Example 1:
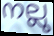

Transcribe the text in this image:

നല്ലു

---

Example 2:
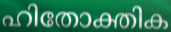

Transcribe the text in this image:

ഹിതോക്തിക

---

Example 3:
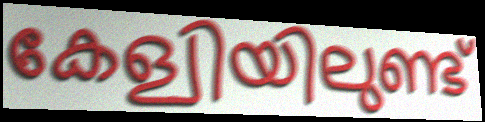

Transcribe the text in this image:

കേള്വിയിലുണ്ട്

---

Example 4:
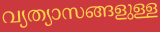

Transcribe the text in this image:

വ്യത്യാസങ്ങളുള്ള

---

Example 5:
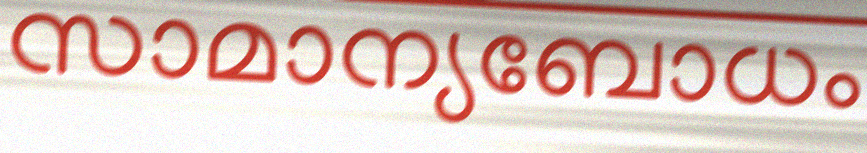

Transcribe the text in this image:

സാമാന്യബോധം